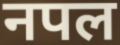
नपल